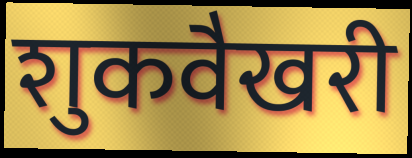
शुकवैखरी